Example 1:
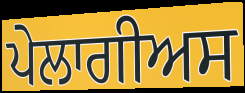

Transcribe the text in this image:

ਪੇਲਾਗੀਅਸ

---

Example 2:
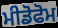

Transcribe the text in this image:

ਮੀਡੋਫੋਮ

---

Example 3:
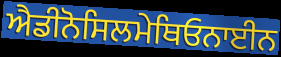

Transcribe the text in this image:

ਐਡੀਨੋਸਿਲਮੇਥਿਓਨਾਈਨ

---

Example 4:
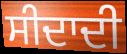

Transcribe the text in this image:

ਸੀਦਾਦੀ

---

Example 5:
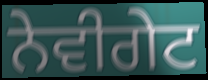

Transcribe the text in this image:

ਨੇਵੀਗੇਟ